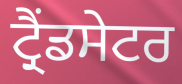
ਟ੍ਰੈਂਡਸੇਟਰ